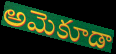
అమెకూడా